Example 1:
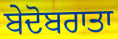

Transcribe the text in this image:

ਬੇਦੋਬਰਾਤਾ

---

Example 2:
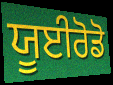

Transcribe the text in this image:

ਯੂਈਰੋਡੋ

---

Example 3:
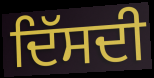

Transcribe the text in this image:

ਦਿੱਸਦੀ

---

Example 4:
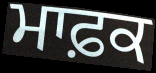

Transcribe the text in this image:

ਮਾਫ਼ਕ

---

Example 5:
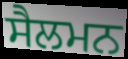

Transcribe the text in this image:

ਸੈਲਮਨ